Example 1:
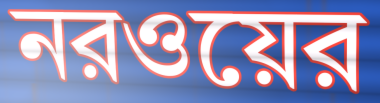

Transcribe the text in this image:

নরওয়ের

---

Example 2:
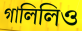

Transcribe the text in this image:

গালিলিও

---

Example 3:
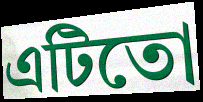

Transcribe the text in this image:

এটিতো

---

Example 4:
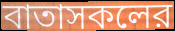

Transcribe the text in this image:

বাতাসকলের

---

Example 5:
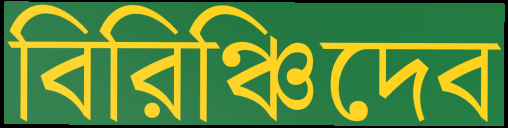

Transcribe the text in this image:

বিরিঞ্চিদেব